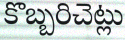
కొబ్బరిచెట్లు